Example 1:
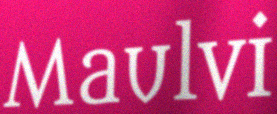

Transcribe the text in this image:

Maulvi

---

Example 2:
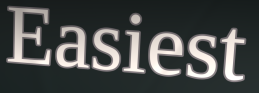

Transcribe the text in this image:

Easiest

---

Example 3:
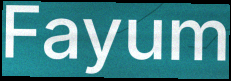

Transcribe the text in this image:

Fayum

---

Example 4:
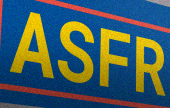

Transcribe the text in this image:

ASFR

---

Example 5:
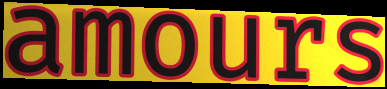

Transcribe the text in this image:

amours